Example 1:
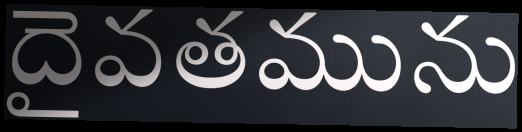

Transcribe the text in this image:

దైవతమును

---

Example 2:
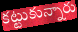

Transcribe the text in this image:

కట్టుకున్నారు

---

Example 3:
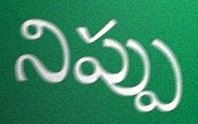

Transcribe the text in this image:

నిప్పు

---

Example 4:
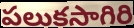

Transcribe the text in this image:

పలుకసాగిరి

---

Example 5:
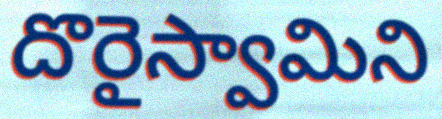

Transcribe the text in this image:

దొరైస్వామిని